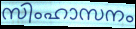
സിംഹാസനം